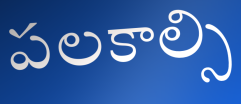
పలకాల్సి